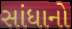
સાંધાનો